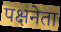
पक्षनेता